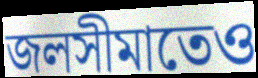
জলসীমাতেও